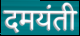
दमयंती